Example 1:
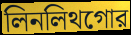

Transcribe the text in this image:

লিনলিথগোর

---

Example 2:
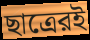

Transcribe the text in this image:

ছাত্রেরই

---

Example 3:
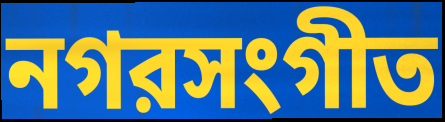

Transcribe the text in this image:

নগরসংগীত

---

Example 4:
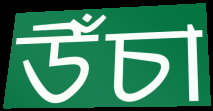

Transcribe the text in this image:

উঁচা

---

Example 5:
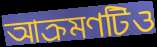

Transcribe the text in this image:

আক্রমণটিও